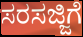
ಸರಸಜ್ಜಿಗೆ